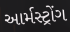
આર્મસ્ટ્રોંગ